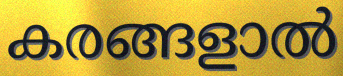
കരങ്ങളാൽ